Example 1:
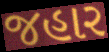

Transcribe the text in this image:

જહાર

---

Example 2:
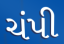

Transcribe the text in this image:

ચંપી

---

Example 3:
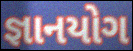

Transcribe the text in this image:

જ્ઞાનયોગ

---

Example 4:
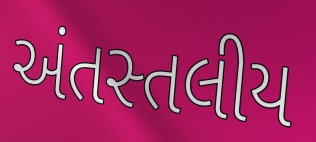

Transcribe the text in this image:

અંતસ્તલીય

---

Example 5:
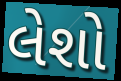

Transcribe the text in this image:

લેશો